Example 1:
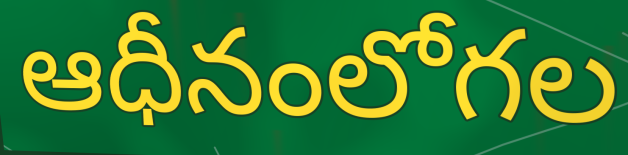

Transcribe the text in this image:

ఆధీనంలోగల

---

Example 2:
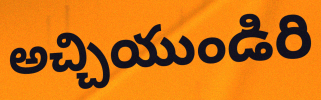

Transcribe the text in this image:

అచ్చియుండిరి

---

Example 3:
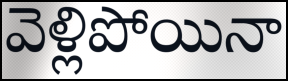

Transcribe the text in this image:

వెళ్లిపోయినా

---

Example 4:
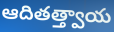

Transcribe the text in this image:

ఆదితత్త్వాయ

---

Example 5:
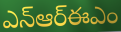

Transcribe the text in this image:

ఎన్ఆర్ఈఎం